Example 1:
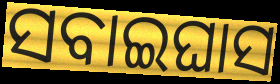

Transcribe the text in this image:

ସବାଇଘାସ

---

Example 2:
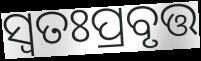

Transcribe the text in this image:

ସ୍ୱତଃପ୍ରବୃତ୍ତ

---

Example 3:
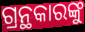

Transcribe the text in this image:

ଗ୍ରନ୍ଥକାରଙ୍କୁ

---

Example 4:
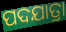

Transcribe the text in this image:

ପଦଯାତ୍ରା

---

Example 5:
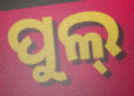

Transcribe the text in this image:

ପୁଲ୍